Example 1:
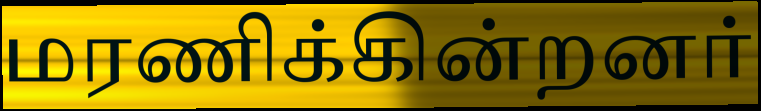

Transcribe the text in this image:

மரணிக்கின்றனர்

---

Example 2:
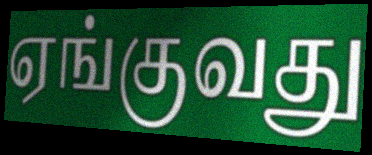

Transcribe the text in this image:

ஏங்குவது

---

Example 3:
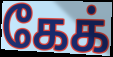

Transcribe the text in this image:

கேக்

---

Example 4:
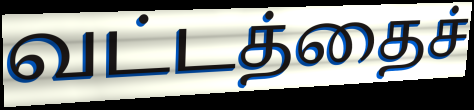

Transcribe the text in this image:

வட்டத்தைச்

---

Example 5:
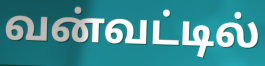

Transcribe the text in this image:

வன்வட்டில்